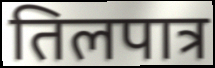
तिलपात्र